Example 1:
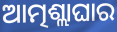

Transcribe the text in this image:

ଆତ୍ମଶ୍ଲାଘାର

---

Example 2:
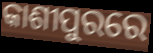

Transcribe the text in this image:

କାଶୀପୁରରେ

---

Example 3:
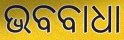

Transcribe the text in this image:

ଭବବାଧା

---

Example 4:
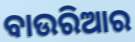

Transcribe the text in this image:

ବାଉରିଆର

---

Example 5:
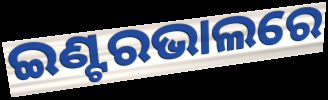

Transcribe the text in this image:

ଇଣ୍ଟରଭାଲରେ